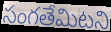
సంగతేమిటని